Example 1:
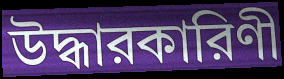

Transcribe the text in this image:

উদ্ধারকারিণী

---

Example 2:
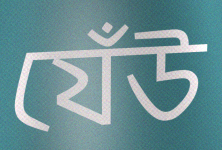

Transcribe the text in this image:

যেঁউ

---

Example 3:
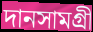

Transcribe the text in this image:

দানসামগ্রী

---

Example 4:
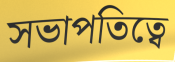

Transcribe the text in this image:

সভাপতিত্বে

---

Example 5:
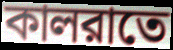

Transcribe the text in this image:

কালরাতে